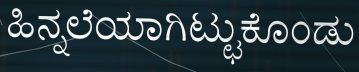
ಹಿನ್ನಲೆಯಾಗಿಟ್ಟುಕೊಂಡು